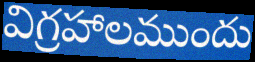
విగ్రహాలముందు